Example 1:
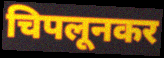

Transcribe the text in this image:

चिपलूनकर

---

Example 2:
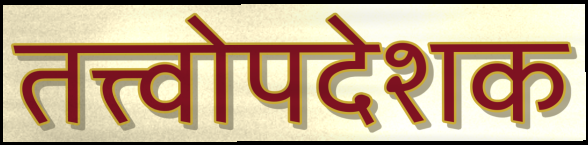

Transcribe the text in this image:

तत्त्वोपदेशक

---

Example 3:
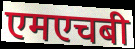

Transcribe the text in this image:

एमएचबी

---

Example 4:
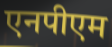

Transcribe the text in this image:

एनपीएम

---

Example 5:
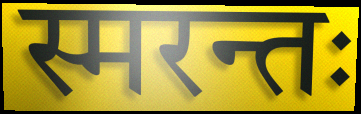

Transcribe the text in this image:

स्मरन्तः